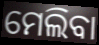
ମେଲିବା